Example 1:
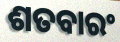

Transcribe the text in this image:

ଶତବାରଂ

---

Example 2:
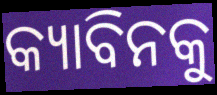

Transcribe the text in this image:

କ୍ୟାବିନକୁ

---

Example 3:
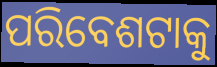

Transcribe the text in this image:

ପରିବେଶଟାକୁ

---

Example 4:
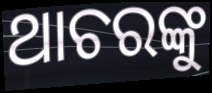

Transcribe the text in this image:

ଥାଚରଙ୍କୁ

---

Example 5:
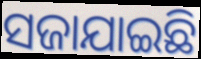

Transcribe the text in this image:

ସଜାଯାଇଛି